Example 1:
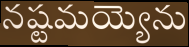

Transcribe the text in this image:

నష్టమయ్యెను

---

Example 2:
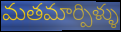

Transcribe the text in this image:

మతమార్పిళ్ళు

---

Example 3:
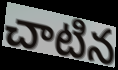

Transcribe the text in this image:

చాటిన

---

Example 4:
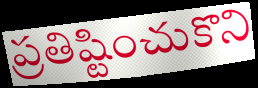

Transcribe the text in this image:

ప్రతిష్టించుకొని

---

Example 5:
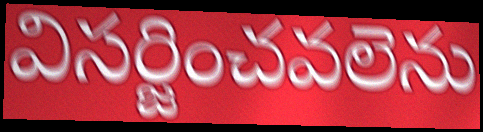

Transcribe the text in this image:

విసర్జించవలెను